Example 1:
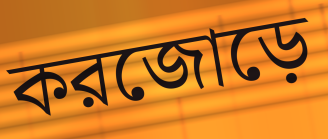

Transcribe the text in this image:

করজোড়ে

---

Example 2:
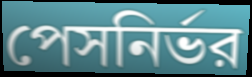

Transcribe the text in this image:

পেসনির্ভর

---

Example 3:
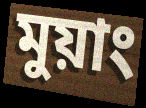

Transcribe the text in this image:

মুয়াং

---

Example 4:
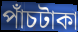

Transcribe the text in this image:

পাঁচটাকা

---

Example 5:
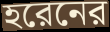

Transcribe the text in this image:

হরেনের